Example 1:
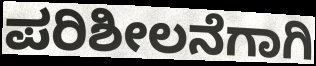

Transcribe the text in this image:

ಪರಿಶೀಲನೆಗಾಗಿ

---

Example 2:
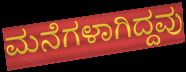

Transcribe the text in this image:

ಮನೆಗಳಾಗಿದ್ದವು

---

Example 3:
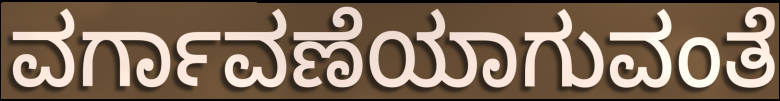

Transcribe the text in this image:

ವರ್ಗಾವಣೆಯಾಗುವಂತೆ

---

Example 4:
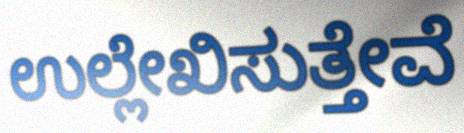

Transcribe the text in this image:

ಉಲ್ಲೇಖಿಸುತ್ತೇವೆ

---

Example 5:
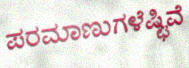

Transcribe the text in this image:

ಪರಮಾಣುಗಳೆಷ್ಟಿವೆ